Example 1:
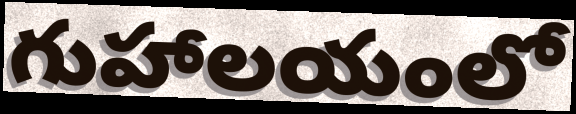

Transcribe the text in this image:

గుహాలయంలో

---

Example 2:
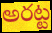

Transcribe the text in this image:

అరట్ట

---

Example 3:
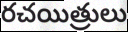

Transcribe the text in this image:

రచయిత్రులు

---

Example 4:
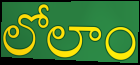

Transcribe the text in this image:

లోలాం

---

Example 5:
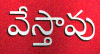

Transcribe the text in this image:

వేస్తావు